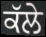
ਕੱਲੇ